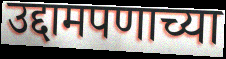
उद्दामपणाच्या